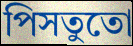
পিসতুতো